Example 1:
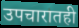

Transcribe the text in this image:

उपचारातही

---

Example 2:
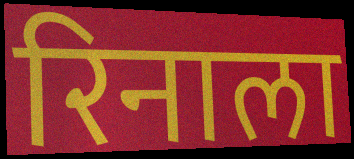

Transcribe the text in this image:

रिनाला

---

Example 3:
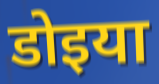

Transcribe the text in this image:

डोइया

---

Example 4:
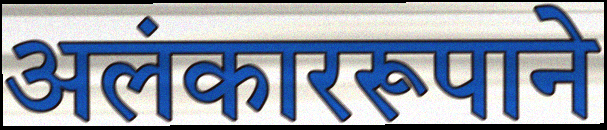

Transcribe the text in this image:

अलंकाररूपाने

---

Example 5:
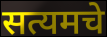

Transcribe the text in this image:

सत्यमचे